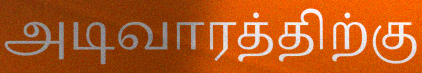
அடிவாரத்திற்கு